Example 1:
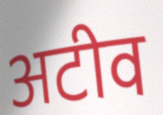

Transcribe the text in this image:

अटीव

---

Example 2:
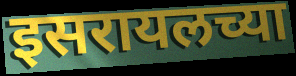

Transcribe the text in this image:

इसरायलच्या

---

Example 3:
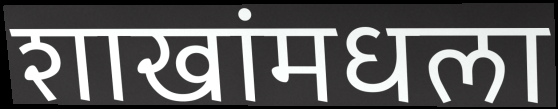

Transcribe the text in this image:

शाखांमधला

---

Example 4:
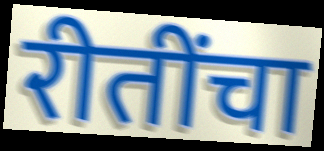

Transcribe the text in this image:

रीतींचा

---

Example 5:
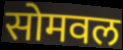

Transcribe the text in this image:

सोमवल